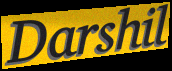
Darshil